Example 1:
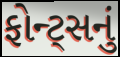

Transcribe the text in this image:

ફોન્ટ્સનું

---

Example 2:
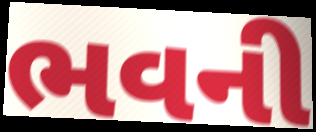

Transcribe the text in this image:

ભવની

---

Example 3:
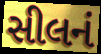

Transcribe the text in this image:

સીલનં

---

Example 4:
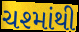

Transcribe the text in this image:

ચશ્માંથી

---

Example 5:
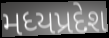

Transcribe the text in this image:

મધ્યપ્રદેશ